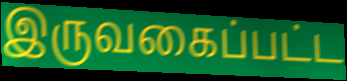
இருவகைப்பட்ட